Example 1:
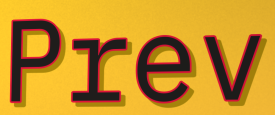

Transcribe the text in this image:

Prev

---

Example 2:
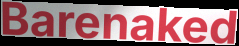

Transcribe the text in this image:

Barenaked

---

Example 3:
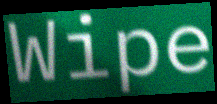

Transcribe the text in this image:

Wipe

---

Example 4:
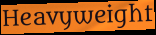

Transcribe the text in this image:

Heavyweight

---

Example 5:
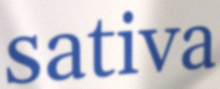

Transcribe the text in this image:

sativa